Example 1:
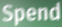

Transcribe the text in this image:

Spend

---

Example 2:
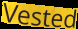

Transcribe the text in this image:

Vested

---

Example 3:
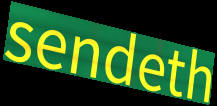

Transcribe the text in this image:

sendeth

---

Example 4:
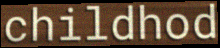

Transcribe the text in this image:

childhod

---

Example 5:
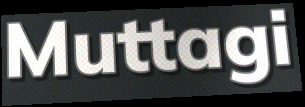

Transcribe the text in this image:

Muttagi